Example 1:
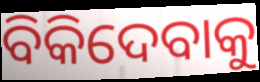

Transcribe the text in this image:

ବିକିଦେବାକୁ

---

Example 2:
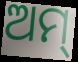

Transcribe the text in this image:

ଅମ୍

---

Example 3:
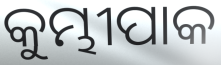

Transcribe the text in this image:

କୁମ୍ଭୀପାକ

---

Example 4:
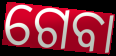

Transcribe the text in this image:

ଗେବା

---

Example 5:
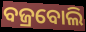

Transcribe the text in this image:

ବଜ୍ରବୋଲି